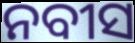
ନବୀସ